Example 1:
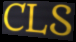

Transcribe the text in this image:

CLS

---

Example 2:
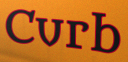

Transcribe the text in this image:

Curb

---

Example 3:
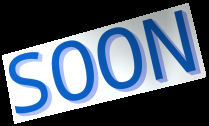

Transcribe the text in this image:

SOON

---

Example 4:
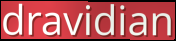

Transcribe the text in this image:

dravidian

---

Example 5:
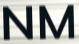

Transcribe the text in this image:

NM